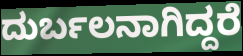
ದುರ್ಬಲನಾಗಿದ್ದರೆ